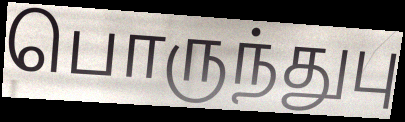
பொருந்துபு